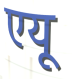
एयू